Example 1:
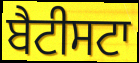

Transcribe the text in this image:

ਬੈਟੀਸਟਾ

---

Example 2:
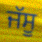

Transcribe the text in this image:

ਜੱਸੂ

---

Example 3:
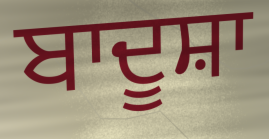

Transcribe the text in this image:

ਬਾਦੂਸ਼ਾ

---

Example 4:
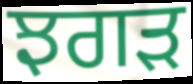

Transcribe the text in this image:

ਝਗੜ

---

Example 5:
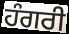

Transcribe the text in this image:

ਹੰਗਰੀ